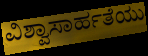
ವಿಶ್ವಾಸಾರ್ಹತೆಯು